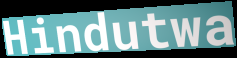
Hindutwa